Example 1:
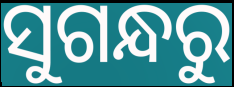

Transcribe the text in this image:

ସୁଗନ୍ଧରୁ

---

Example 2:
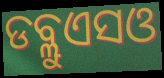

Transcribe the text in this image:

ଡବ୍ଲୁଏସଓ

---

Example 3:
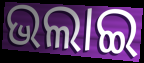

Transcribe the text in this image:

ଭଲାଇ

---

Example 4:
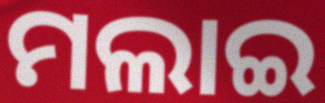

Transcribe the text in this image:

ମଲାଇ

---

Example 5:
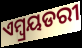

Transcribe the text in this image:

ଏମ୍ବ୍ରୟଡରୀ